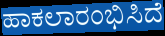
ಹಾಕಲಾರಂಭಿಸಿದೆ